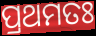
ପ୍ରଥମତଃ